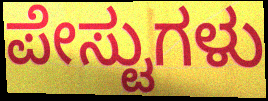
ಪೇಸ್ಟುಗಳು